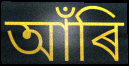
আঁৰি